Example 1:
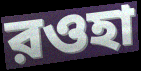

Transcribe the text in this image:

রওহা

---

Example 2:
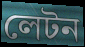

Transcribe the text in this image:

লেটন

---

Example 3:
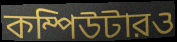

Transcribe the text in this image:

কম্পিউটারও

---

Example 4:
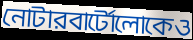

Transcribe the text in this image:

নোটারবার্টোলোকেও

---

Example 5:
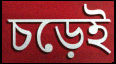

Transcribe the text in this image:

চড়েই